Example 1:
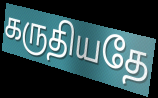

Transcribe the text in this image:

கருதியதே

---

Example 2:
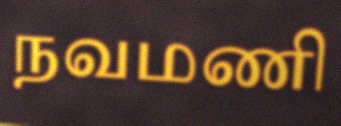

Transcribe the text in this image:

நவமணி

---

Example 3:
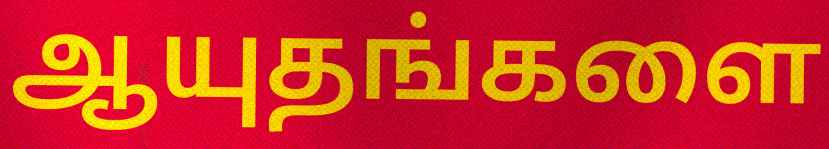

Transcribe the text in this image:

ஆயுதங்களை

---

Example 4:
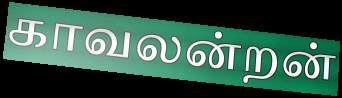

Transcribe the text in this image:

காவலன்றன்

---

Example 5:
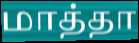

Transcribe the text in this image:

மாத்தா